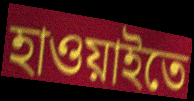
হাওয়াইতে